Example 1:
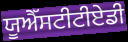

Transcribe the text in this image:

ਯੂਐੱਸਟੀਟੀਏਡੀ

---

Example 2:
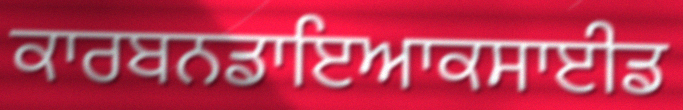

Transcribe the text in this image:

ਕਾਰਬਨਡਾਇਆਕਸਾਈਡ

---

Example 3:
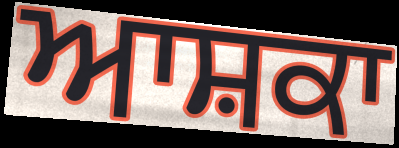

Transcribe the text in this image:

ਆਸ਼ਕਾ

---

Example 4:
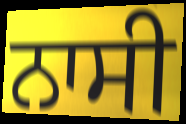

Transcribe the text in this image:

ਨਾਸੀ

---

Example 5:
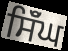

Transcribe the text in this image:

ਸਿੱੰਘ